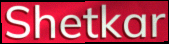
Shetkar